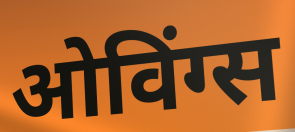
ओविंग्स